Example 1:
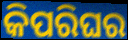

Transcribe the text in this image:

କିପରିଘର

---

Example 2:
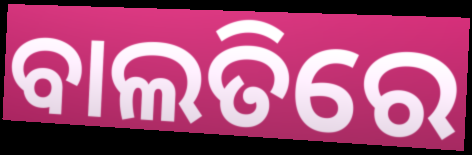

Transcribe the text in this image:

ବାଲତିରେ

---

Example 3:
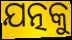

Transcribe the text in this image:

ଯତ୍ନକୁ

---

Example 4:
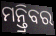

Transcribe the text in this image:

ମନ୍ତ୍ରିବର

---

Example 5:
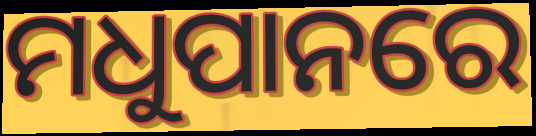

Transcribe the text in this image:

ମଧୁପାନରେ